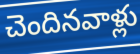
చెందినవాళ్లు